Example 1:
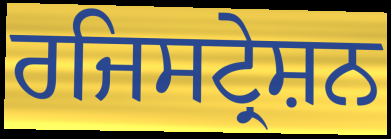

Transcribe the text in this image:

ਰਜਿਸਟ੍ਰੇਸ਼ਨ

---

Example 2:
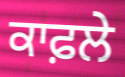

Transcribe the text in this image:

ਕਾਫ਼ਲੇ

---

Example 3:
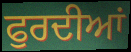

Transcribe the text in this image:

ਫੁਰਦੀਆਂ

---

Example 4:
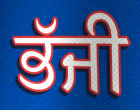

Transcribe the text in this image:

ਭੱਜੀ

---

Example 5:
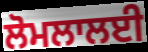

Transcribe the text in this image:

ਲੋਮਲਾਲਈ